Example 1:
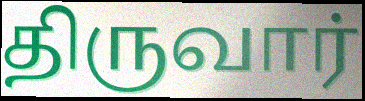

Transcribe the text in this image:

திருவார்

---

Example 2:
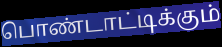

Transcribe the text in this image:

பொண்டாட்டிக்கும்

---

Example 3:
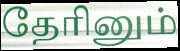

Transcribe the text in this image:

தேரினும்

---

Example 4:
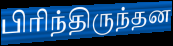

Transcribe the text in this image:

பிரிந்திருந்தன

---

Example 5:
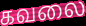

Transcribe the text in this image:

கவலை